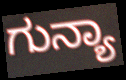
ಗುನ್ಯಾ